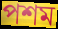
পশম